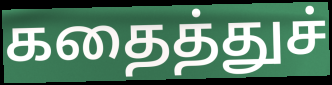
கதைத்துச்